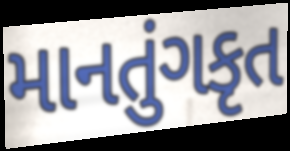
માનતુંગકૃત